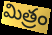
మిత్రం